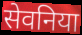
सेवनिया